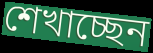
শেখাচ্ছেন